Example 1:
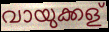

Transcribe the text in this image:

വായുക്കള്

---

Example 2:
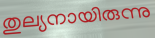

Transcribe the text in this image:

തുല്യനായിരുന്നു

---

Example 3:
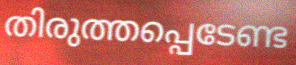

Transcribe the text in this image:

തിരുത്തപ്പെടേണ്ട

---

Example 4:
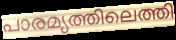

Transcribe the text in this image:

പാരമ്യത്തിലെത്തി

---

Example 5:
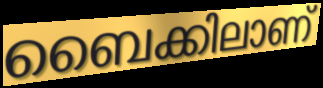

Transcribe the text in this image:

ബൈക്കിലാണ്